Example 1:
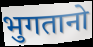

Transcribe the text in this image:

भुगतानो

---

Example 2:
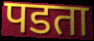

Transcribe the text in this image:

पडता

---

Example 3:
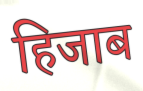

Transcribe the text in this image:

हिजाब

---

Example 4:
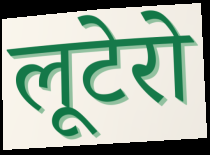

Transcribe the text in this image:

लूटेरो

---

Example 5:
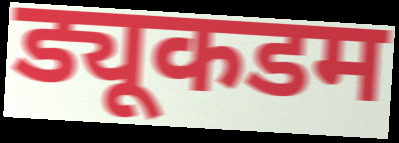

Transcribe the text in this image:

ड्यूकडम